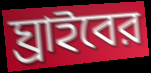
ঘ্রাইবের